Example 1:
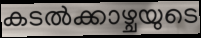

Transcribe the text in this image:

കടൽക്കാഴ്ചയുടെ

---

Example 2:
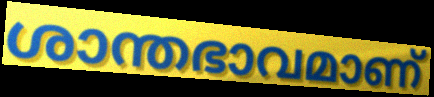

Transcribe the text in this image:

ശാന്തഭാവമാണ്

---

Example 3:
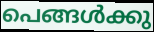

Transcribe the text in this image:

പെങ്ങൾക്കു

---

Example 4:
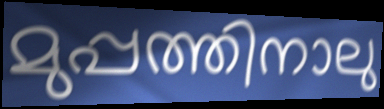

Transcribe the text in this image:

മുപ്പത്തിനാലു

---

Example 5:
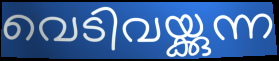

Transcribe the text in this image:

വെടിവയ്ക്കുന്ന